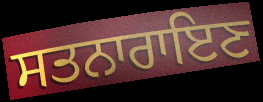
ਸਤਨਾਰਾਇਣ